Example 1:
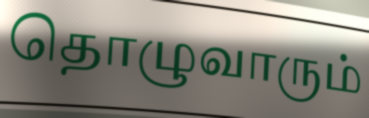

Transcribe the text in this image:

தொழுவாரும்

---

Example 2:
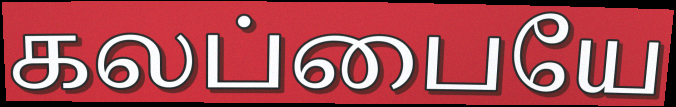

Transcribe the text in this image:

கலப்பையே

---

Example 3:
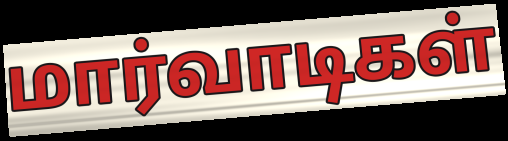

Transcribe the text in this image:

மார்வாடிகள்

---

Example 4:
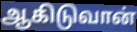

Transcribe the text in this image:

ஆகிடுவான்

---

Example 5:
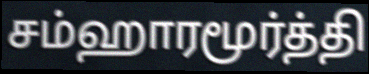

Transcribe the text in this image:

சம்ஹாரமூர்த்தி